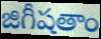
జిగీషతాం